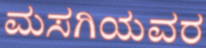
ಮಸಗಿಯವರ